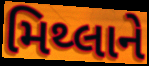
મિથ્લાને